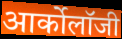
आर्कोलॉजी